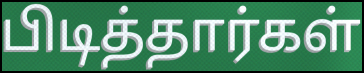
பிடித்தார்கள்